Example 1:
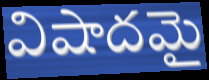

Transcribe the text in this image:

విషాదమై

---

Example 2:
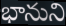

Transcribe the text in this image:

భానుని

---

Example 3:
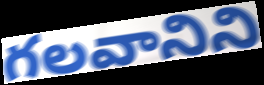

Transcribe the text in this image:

గలవానిని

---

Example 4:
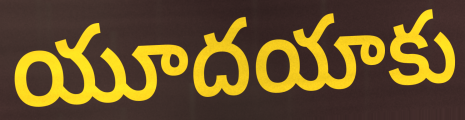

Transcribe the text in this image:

యూదయాకు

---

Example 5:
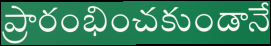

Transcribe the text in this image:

ప్రారంభించకుండానే